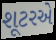
શૂટરએ